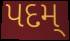
પદમ્